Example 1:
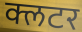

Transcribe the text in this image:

क्लटर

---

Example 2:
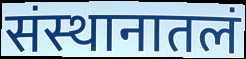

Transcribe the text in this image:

संस्थानातलं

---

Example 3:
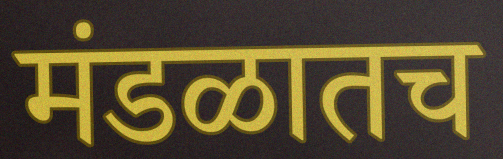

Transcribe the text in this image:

मंडळातच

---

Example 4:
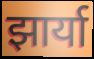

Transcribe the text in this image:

झार्या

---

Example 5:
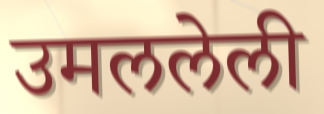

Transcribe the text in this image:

उमललेली